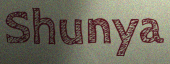
Shunya